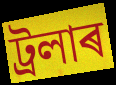
ট্ৰলাৰ